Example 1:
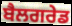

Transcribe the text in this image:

ਬੈਲਗਰੇਡ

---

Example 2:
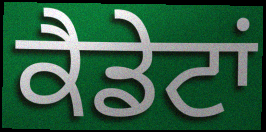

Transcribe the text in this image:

ਕੈਡੇਟਾਂ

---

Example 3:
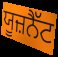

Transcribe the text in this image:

ਯੂਜ਼ਨੈੱਟ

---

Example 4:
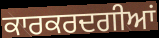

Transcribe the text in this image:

ਕਾਰਕਰਦਗੀਆਂ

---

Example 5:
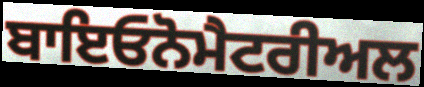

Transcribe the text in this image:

ਬਾਇਓਨੋਮੈਟਰੀਅਲ